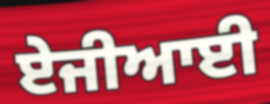
ਏਜੀਆਈ